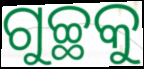
ଗୁଚ୍ଛକୁ